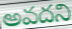
అవదని